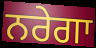
ਨਰੇਗਾ